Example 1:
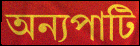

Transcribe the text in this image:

অন্যপাটি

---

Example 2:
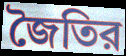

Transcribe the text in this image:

জৈতির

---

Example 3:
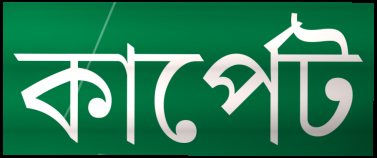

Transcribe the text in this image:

কার্পেট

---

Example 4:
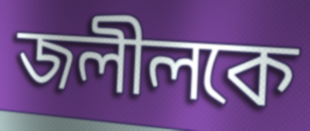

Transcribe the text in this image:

জলীলকে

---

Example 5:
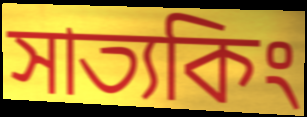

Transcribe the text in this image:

সাত্যকিং